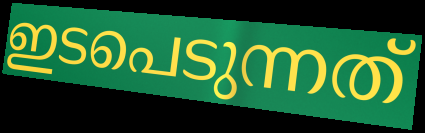
ഇടപെടുന്നത്